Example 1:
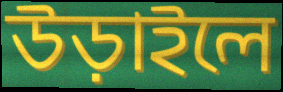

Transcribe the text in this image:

উড়াইলে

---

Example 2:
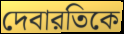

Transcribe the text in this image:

দেবারতিকে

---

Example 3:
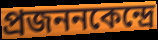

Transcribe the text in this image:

প্রজননকেন্দ্রে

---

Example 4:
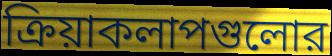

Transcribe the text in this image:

ক্রিয়াকলাপগুলোর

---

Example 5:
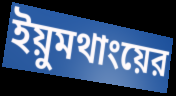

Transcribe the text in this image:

ইয়ুমথাংয়ের